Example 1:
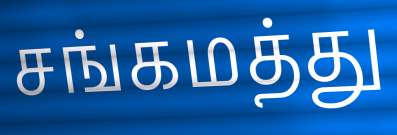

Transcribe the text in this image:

சங்கமத்து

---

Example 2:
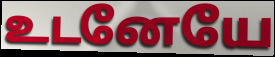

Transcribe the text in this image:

உடனேயே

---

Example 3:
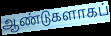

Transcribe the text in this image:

ஆண்டுகளாகப்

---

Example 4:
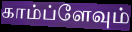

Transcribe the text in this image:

காம்ப்ளேவும்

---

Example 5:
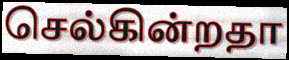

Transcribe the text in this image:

செல்கின்றதா